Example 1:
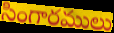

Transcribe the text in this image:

సింగారములు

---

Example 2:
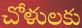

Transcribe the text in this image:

చోళులకు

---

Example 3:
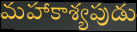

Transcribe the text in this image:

మహాకాశ్యపుడు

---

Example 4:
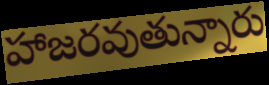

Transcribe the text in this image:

హాజరవుతున్నారు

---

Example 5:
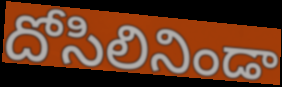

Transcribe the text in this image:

దోసిలినిండా